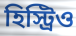
হিস্ট্রিও